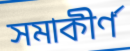
সমাকীর্ণ